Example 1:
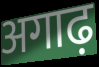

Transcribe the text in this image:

अगाढ़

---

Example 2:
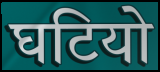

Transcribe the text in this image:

घटियो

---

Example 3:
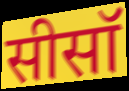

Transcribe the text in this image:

सीसॉ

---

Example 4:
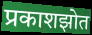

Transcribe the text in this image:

प्रकाशझोत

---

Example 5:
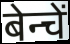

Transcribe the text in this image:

बेन्चें